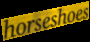
horseshoes